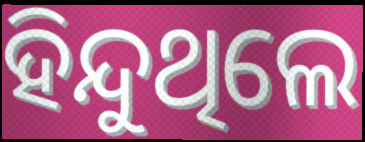
ହିନ୍ଦୁଥିଲେ